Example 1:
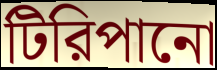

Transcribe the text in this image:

টিরিপানো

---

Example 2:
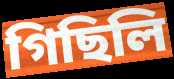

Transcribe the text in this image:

গিছিলি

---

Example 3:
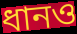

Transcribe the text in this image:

ধানও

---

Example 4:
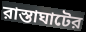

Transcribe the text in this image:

রাস্তাঘাটের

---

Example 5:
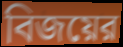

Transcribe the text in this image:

বিজয়ের